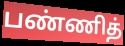
பண்ணித்